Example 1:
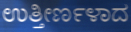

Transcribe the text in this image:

ಉತ್ತೀರ್ಣಳಾದ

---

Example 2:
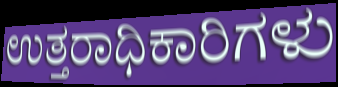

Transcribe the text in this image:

ಉತ್ತರಾಧಿಕಾರಿಗಳು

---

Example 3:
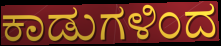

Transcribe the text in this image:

ಕಾಡುಗಳಿಂದ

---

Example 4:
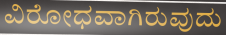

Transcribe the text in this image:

ವಿರೋಧವಾಗಿರುವುದು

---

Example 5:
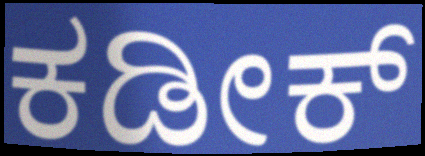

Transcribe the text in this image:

ಕಡೀಕ್